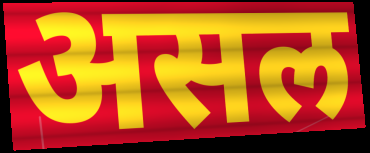
असल